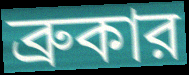
ব্রুকার